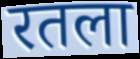
रतला